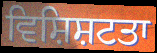
ਵਿਸ਼ਿਸ਼ਟਤਾ